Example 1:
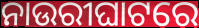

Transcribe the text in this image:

ନାଉରୀଘାଟରେ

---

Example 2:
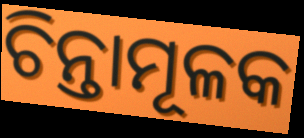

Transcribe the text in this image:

ଚିନ୍ତାମୂଳକ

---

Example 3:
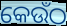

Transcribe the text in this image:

କେଉଁଠ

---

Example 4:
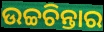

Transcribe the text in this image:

ଉଚ୍ଚଚିନ୍ତାର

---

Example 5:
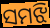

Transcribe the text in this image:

ସମଝି